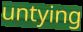
untying